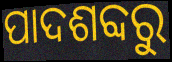
ପାଦଶବ୍ଦରୁ